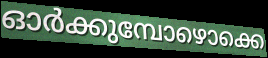
ഓർക്കുമ്പോഴൊക്കെ